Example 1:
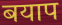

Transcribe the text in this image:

बयाप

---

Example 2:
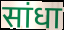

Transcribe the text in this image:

सांधा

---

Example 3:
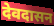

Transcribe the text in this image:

देवदासन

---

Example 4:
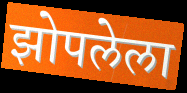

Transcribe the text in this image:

झोपलेला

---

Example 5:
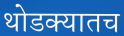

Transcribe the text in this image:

थोडक्यातच